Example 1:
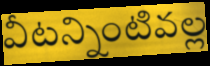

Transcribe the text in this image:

వీటన్నింటివల్ల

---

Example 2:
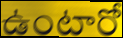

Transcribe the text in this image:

ఉంటారో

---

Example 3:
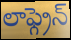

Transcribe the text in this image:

లాఫ్గ్రెన్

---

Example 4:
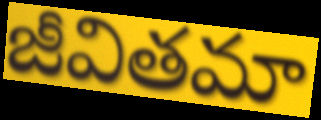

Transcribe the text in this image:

జీవితమా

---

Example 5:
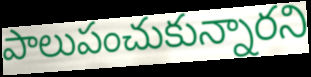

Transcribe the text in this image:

పాలుపంచుకున్నారని